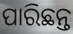
ପାରିଛନ୍ତ